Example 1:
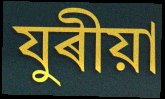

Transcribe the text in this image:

যুৰীয়া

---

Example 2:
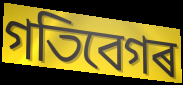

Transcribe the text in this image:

গতিবেগৰ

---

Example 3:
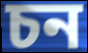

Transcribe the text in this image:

চন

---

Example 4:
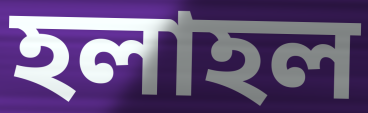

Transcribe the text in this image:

হলাহল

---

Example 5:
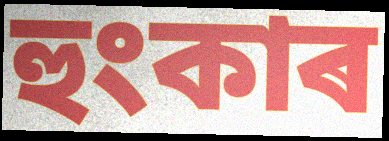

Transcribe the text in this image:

হুংকাৰ